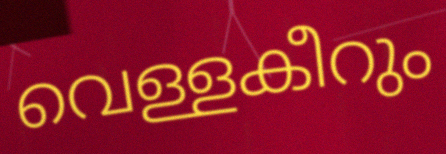
വെള്ളകീറും